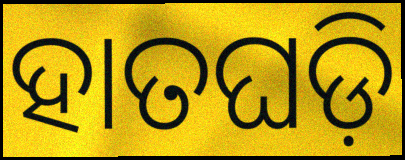
ହାତଘଡ଼ି